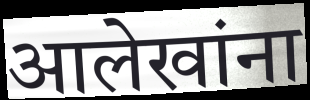
आलेखांना